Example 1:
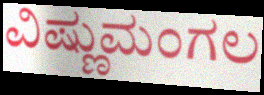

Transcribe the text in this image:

ವಿಷ್ಣುಮಂಗಲ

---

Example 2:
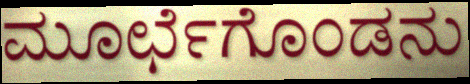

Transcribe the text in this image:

ಮೂರ್ಛೆಗೊಂಡನು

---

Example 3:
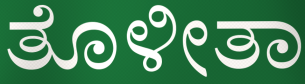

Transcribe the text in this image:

ತೊಳೀತಾ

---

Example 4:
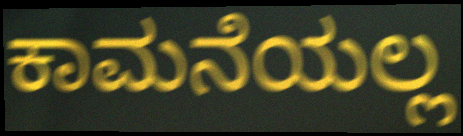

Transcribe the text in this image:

ಕಾಮನೆಯಲ್ಲ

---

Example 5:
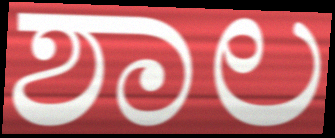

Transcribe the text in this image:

ಶಾಲ